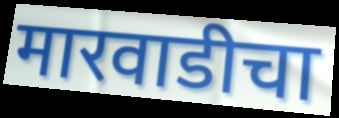
मारवाडीचा